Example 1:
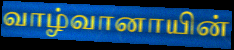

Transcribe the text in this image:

வாழ்வானாயின்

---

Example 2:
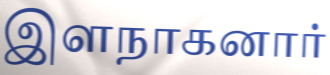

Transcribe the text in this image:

இளநாகனார்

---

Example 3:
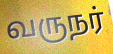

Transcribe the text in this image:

வருநர்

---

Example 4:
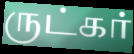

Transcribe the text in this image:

ருட்கர்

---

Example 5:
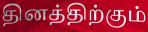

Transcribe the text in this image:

தினத்திற்கும்